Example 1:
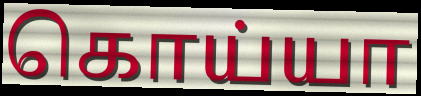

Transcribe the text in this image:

கொய்யா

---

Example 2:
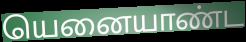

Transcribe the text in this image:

யெனையாண்ட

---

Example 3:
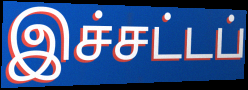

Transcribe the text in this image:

இச்சட்டப்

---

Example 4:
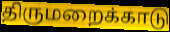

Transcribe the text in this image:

திருமறைக்காடு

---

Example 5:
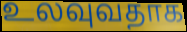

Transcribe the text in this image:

உலவுவதாக